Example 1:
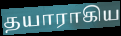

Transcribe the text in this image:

தயாராகிய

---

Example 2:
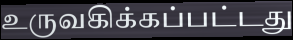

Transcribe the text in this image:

உருவகிக்கப்பட்டது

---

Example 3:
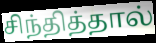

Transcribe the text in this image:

சிந்தித்தால்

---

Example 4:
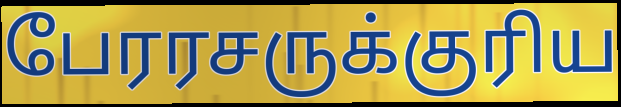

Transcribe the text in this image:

பேரரசருக்குரிய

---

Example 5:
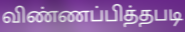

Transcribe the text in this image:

விண்ணப்பித்தபடி